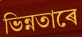
ভিন্নতাৰে